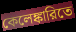
কেলেঙ্কারিতে